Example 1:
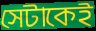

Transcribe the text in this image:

সেটাকেই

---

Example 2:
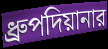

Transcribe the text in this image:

ধ্রুপদিয়ানার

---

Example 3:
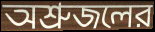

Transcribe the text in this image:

অশ্রুজলের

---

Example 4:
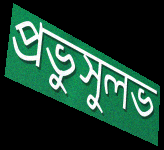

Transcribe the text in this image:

প্রভুসুলভ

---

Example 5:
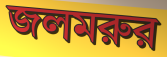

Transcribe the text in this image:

জলমরুর